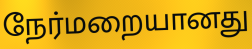
நேர்மறையானது